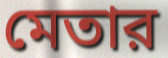
মেতার